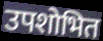
उपशोभित